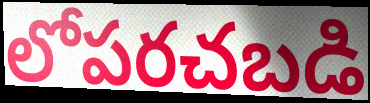
లోపరచబడి